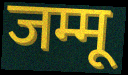
जम्‍मू